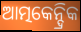
ଆତ୍ମକେନ୍ଦ୍ରିକ